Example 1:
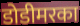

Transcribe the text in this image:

डोडीमरका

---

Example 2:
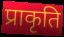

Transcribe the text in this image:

प्राकृति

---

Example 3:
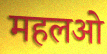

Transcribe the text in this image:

महलओ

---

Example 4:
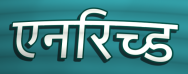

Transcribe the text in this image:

एनरिच्ड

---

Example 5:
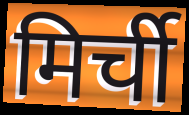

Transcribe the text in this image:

मिर्ची